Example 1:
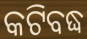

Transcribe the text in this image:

କଟିବଦ୍ଧ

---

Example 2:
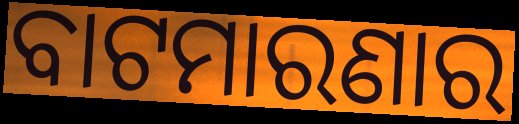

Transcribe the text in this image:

ବାଟମାରଣାର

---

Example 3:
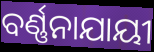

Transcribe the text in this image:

ବର୍ଣ୍ଣନାଯାୟୀ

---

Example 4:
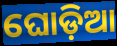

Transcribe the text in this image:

ଘୋଡ଼ିଆ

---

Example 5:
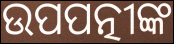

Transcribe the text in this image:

ଉପପତ୍ନୀଙ୍କ